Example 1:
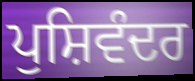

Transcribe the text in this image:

ਪੁਸ਼ਿਵੰਦਰ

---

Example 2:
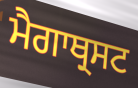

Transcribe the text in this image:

ਮੈਗਾਥ੍ਰਸਟ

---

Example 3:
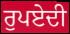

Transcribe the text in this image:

ਰੁਪਏਦੀ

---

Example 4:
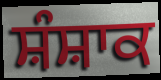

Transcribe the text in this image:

ਸ਼ੰਸ਼ਾਕ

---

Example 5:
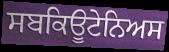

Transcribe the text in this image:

ਸਬਕਿਊਟੇਨਿਅਸ